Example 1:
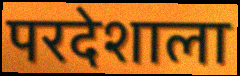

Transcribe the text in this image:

परदेशाला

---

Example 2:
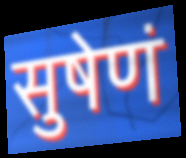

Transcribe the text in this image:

सुषेणं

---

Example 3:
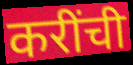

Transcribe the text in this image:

करींची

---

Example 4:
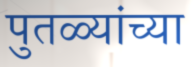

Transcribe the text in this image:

पुतळ्यांच्या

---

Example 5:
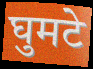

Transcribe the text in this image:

घुमटे